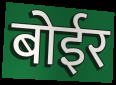
बोईर